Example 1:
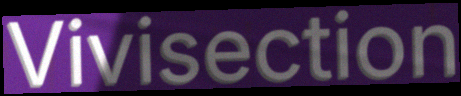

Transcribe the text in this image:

Vivisection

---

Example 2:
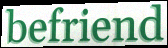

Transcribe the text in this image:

befriend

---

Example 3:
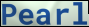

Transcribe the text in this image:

Pearl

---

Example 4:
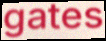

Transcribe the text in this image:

gates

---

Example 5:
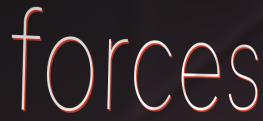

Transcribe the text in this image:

forces